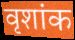
वृशांक